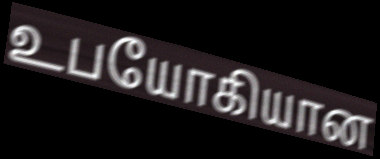
உபயோகியான